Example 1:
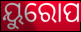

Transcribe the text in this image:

ୟୁରୋପ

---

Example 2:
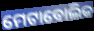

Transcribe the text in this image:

ମେଟାବୋଲିକ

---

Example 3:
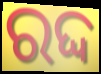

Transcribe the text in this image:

ରଦ୍ଦ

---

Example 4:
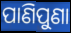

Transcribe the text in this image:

ପାଣିପୁଣା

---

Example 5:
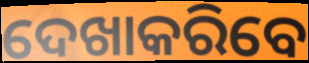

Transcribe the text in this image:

ଦେଖାକରିବେ